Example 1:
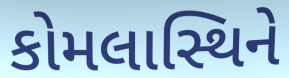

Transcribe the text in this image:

કોમલાસ્થિને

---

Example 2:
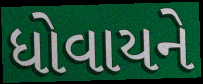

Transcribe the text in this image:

ધોવાયને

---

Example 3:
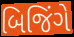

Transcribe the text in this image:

બિજિંગે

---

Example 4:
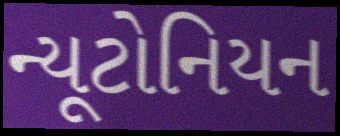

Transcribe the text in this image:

ન્યૂટોનિયન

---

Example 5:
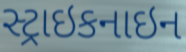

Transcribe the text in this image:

સ્ટ્રાઇકનાઇન